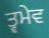
ਤ੍ਵਮੇਵ